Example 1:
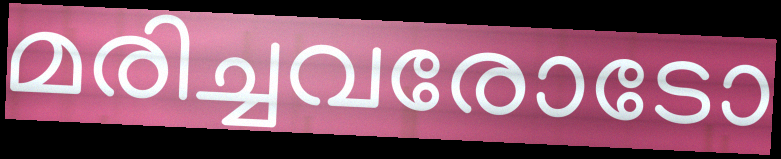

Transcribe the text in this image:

മരിച്ചവരോടോ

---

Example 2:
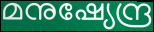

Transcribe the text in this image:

മനുഷ്യേന്ദ്ര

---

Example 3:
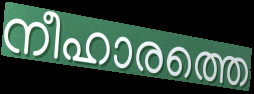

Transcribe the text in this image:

നീഹാരത്തെ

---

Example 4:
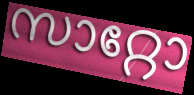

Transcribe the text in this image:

സാറ്റോ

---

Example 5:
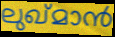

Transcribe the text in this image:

ലുഖ്മാൻ